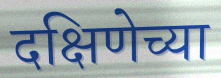
दक्षिणेच्या